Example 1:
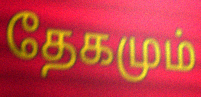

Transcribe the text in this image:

தேகமும்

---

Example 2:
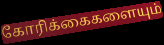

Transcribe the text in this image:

கோரிக்கைகளையும்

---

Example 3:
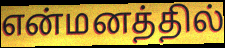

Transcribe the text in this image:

என்மனத்தில்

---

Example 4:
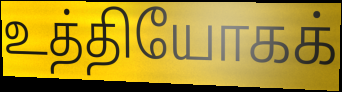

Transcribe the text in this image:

உத்தியோகக்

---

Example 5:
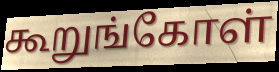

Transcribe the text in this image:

கூறுங்கோள்